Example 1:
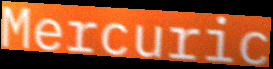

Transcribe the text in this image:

Mercuric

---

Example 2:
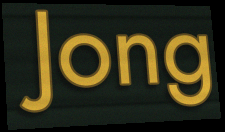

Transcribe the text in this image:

Jong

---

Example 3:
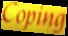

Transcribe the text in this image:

Coping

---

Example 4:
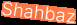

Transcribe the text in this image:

Shahbaz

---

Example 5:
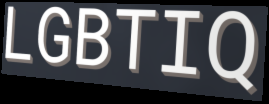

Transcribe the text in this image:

LGBTIQ